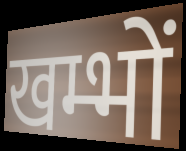
खम्भों